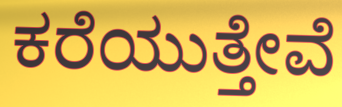
ಕರೆಯುತ್ತೇವೆ